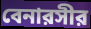
বেনারসীর